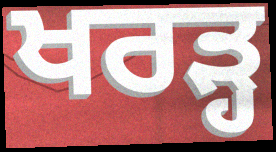
ਖਰੜ੍ਹ